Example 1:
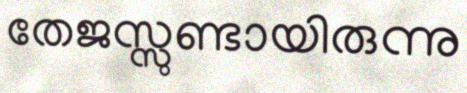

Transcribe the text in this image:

തേജസ്സുണ്ടായിരുന്നു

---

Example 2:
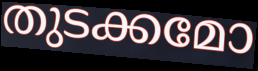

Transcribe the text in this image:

തുടക്കമോ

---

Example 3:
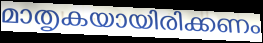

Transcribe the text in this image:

മാതൃകയായിരിക്കണം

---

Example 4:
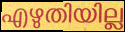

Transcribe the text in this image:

എഴുതിയില്ല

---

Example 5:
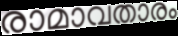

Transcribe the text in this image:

രാമാവതാരം